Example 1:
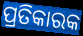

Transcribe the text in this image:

ପ୍ରତିକାରକ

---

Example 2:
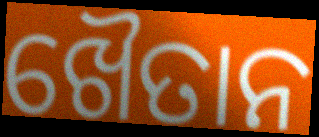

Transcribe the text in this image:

ଖୈତାନ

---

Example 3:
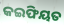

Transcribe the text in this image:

କଇଫିୟତ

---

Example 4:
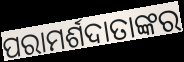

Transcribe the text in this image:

ପରାମର୍ଶଦାତାଙ୍କର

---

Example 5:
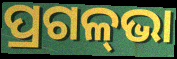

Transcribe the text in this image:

ପ୍ରଗଳ୍‌ଭା